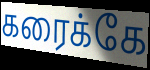
கரைக்கே